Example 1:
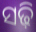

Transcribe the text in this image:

ସଢ଼ି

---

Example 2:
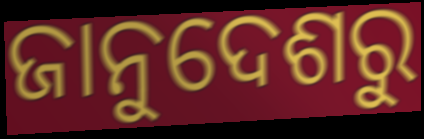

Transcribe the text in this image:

ଜାନୁଦେଶରୁ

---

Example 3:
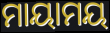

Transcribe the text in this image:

ମାୟାମୟ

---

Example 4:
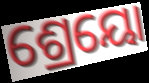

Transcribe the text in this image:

ଶ୍ରେୟୋ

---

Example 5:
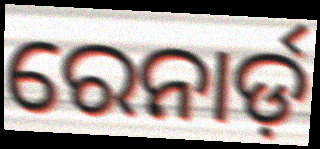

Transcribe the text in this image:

ରେନାର୍ଡ଼